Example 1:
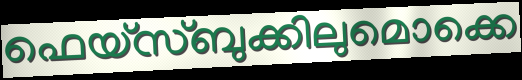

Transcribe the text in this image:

ഫെയ്സ്ബുക്കിലുമൊക്കെ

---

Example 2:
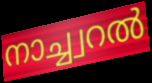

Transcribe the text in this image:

നാച്ച്വറൽ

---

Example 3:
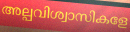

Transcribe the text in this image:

അല്പവിശ്വാസികളേ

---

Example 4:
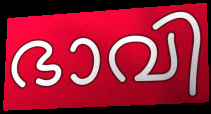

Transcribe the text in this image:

ഭാവി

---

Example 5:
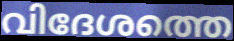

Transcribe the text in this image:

വിദേശത്തെ